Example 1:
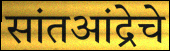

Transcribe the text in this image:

सांतआंद्रेचे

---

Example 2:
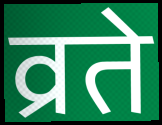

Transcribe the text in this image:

व्रते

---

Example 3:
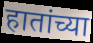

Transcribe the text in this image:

हातांच्या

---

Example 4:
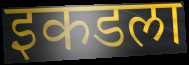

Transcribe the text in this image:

इकडला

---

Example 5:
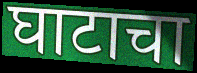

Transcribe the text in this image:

घाटाचा